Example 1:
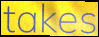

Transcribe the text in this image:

takes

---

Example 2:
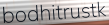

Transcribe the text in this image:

bodhitrustk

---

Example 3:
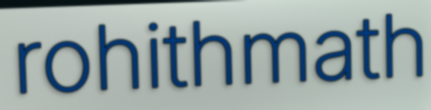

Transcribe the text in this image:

rohithmath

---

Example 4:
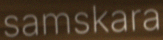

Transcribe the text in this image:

samskara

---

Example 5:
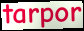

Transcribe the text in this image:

tarpor